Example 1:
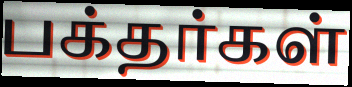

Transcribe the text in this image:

பக்தர்கள்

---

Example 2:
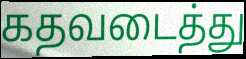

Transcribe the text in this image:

கதவடைத்து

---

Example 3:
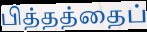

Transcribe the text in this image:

பித்தத்தைப்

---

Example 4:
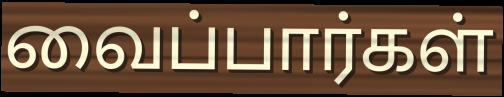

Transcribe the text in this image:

வைப்பார்கள்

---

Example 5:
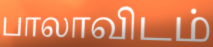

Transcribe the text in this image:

பாலாவிடம்